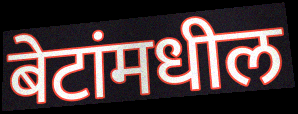
बेटांमधील